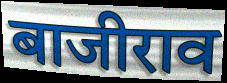
बाजीराव